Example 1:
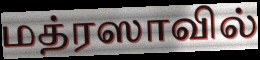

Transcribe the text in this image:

மத்ரஸாவில்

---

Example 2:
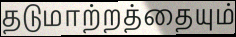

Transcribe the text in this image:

தடுமாற்றத்தையும்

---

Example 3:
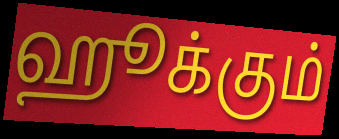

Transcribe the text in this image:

ஹூக்கும்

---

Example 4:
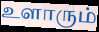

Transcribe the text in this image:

உளாரும்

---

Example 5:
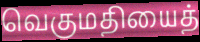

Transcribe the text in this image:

வெகுமதியைத்